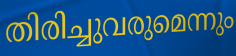
തിരിച്ചുവരുമെന്നും